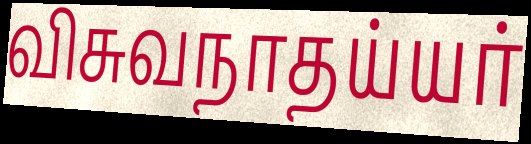
விசுவநாதய்யர்